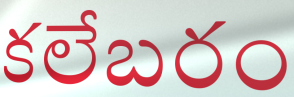
కలేబరం